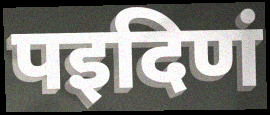
पइदिणं